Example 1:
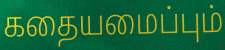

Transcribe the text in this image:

கதையமைப்பும்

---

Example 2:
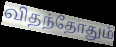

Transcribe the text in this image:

விதந்தோதும்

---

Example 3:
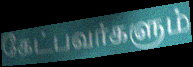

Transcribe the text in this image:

கேட்பவர்களும்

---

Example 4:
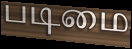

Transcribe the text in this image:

படிமை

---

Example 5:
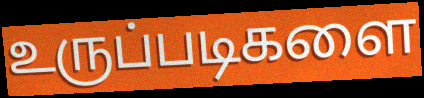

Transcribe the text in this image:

உருப்படிகளை